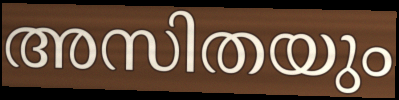
അസിതയും